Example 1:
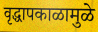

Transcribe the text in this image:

वृद्धापकाळामुळे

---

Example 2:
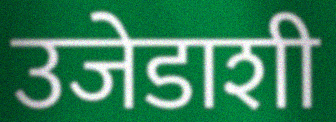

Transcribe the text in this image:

उजेडाशी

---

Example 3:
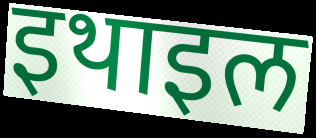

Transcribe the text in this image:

इथाइल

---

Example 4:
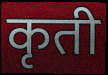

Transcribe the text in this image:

कृती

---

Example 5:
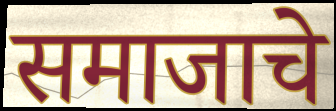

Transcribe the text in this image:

समाजाचे